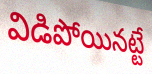
విడిపోయినట్టే